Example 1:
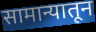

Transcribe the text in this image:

सामान्यातून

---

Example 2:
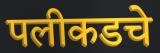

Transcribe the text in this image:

पलीकडचे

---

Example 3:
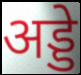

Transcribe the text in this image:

अड्डे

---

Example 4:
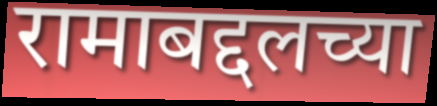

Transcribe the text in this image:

रामाबद्दलच्या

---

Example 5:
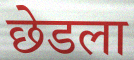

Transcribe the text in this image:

छेडला